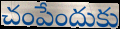
చంపేందుకు